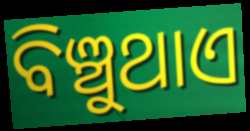
ବିଞ୍ଚୁଥାଏ